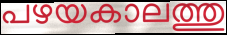
പഴയകാലത്തു